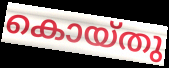
കൊയ്തു